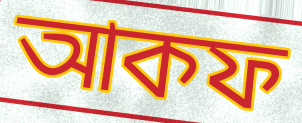
আকফ